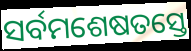
ସର୍ବମଶେଷତସ୍ତେ